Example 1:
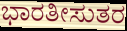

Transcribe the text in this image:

ಭಾರತೀಸುತರ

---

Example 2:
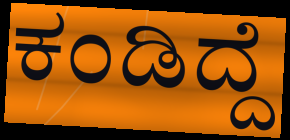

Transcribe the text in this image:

ಕಂಡಿದ್ದೆ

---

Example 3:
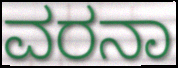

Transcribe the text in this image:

ವರನಾ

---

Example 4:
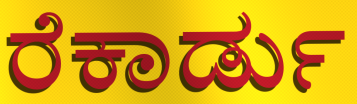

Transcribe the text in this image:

ರೆಕಾರ್ಡು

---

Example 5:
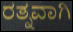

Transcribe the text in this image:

ರತ್ನವಾಗಿ